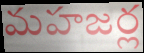
మహజర్ల